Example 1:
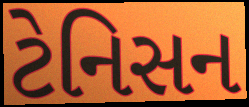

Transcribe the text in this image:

ટેનિસન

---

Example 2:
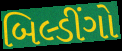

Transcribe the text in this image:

બિલ્ડીંગો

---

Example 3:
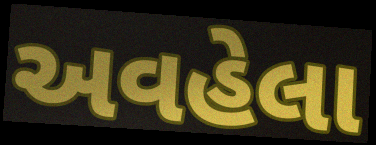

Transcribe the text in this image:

અવહેલા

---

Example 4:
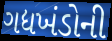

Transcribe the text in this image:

ગદ્યખંડોની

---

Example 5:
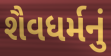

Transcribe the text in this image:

શૈવધર્મનું